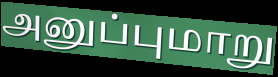
அனுப்புமாறு